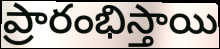
ప్రారంభిస్తాయి